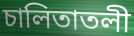
চালিতাতলী